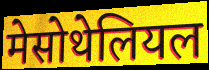
मेसोथेलियल